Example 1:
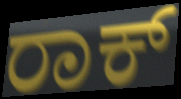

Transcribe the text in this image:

ರಾಕ್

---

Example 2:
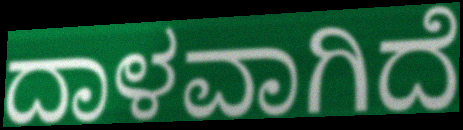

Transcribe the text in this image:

ದಾಳವಾಗಿದೆ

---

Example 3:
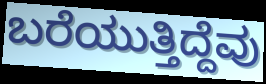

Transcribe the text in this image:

ಬರೆಯುತ್ತಿದ್ದೆವು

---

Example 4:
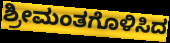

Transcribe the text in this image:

ಶ್ರೀಮಂತಗೊಳಿಸಿದ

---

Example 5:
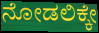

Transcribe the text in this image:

ನೋಡಲಿಕ್ಕೇ